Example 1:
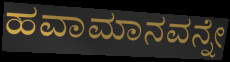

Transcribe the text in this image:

ಹವಾಮಾನವನ್ನೇ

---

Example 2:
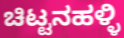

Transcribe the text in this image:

ಚಿಟ್ಟನಹಳ್ಳಿ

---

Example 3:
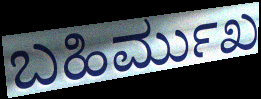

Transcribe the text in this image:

ಬಹಿರ್ಮುಖ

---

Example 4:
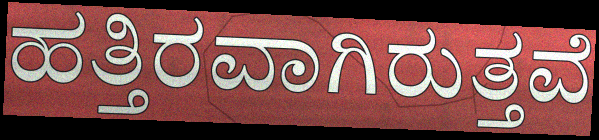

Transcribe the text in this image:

ಹತ್ತಿರವಾಗಿರುತ್ತವೆ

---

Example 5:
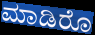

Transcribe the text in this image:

ಮಾಡಿರೊ